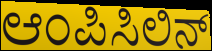
ಆಂಪಿಸಿಲಿನ್